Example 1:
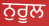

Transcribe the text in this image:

ਨੁਰੂਲ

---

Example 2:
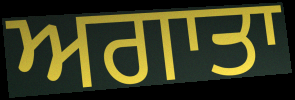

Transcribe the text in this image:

ਅਗਾਤਾ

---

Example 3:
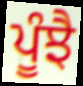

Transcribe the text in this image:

ਪੂੰਝੈ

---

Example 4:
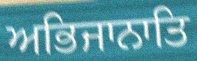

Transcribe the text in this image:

ਅਭਿਜਾਨਾਤਿ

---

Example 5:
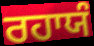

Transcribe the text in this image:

ਰਹਾਯੰ